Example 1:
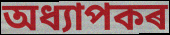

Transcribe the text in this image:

অধ্যাপকৰ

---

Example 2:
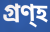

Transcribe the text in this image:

গ্ৰণ্হ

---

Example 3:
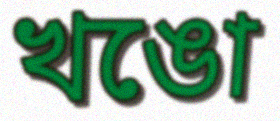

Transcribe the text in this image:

খঙো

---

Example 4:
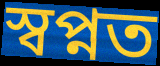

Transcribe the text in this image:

স্বপ্নত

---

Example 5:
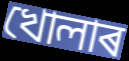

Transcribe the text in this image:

খোলাৰ